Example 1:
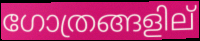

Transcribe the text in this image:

ഗോത്രങ്ങളില്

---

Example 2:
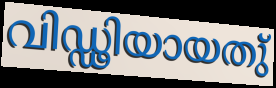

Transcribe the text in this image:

വിഡ്ഢിയായതു്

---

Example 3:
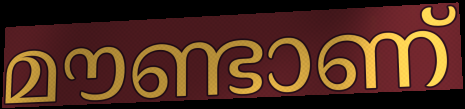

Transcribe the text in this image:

മൗണ്ടാണ്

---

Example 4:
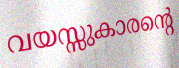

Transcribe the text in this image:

വയസ്സുകാരന്റെ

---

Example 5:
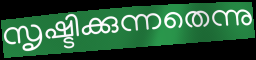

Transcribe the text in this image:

സൃഷ്ടിക്കുന്നതെന്നു